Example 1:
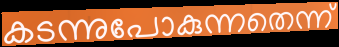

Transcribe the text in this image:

കടന്നുപോകുന്നതെന്ന്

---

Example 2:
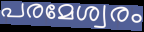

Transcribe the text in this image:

പരമേശ്വരം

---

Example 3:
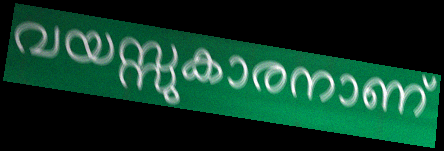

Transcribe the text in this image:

വയസ്സുകാരനാണ്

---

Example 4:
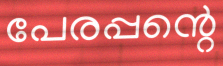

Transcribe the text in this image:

പേരപ്പന്റെ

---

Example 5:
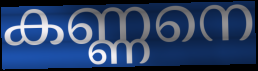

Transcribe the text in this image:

കണ്ണനെ